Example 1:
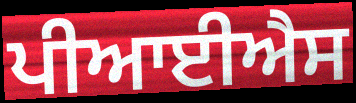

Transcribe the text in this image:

ਪੀਆਈਐਸ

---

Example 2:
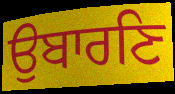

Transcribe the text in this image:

ਉਬਾਰਣਿ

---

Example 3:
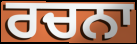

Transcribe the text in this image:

ਰਚਨਾ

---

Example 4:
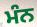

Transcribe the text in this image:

ਮੰਨ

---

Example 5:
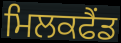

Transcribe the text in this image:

ਮਿਲਕਫੈਂਡ